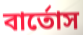
বার্তোস